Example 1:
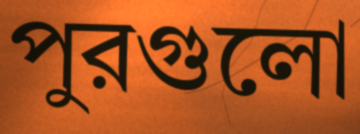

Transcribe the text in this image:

পুরগুলো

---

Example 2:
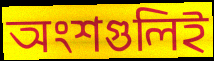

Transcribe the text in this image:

অংশগুলিই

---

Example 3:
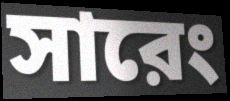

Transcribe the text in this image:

সারেং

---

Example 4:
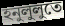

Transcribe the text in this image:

হনুলুলুতে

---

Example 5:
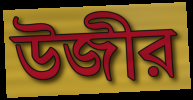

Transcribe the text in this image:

উজীর